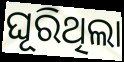
ଘୂରିଥିଲା